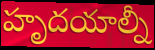
హృదయాల్నీ